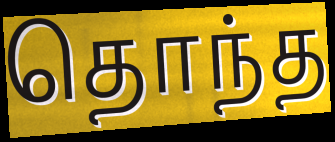
தொந்த